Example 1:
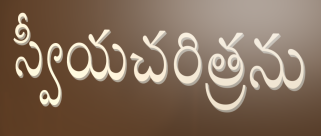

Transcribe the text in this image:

స్వీయచరిత్రను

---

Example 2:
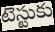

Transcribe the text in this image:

టెస్టుకు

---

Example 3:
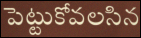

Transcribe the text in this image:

పెట్టుకోవలసిన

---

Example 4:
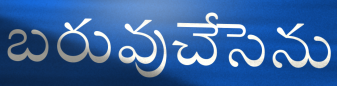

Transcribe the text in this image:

బరువుచేసెను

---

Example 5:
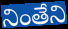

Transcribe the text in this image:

నింతేని